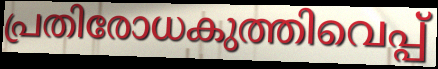
പ്രതിരോധകുത്തിവെപ്പ്